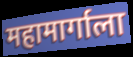
महामार्गाला